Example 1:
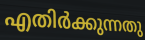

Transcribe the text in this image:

എതിർക്കുന്നതു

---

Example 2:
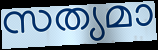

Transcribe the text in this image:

സത്യമാ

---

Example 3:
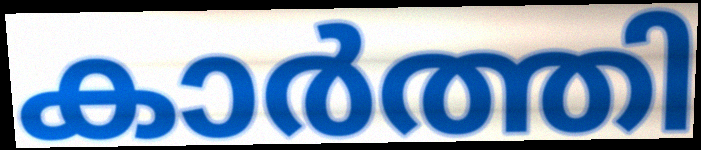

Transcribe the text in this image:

കാർത്തി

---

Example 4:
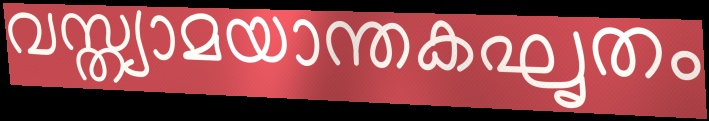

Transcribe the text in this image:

വസ്ത്യാമയാന്തകഘൃതം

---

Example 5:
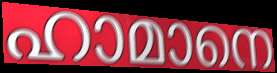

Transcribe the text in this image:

ഹാമാനെ